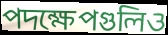
পদক্ষেপগুলিও